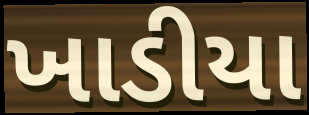
ખાડીયા